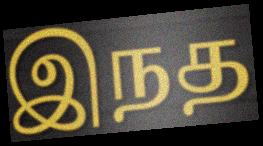
இநத